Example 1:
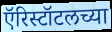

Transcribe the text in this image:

ऍरिस्टॉटलच्या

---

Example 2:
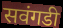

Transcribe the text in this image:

सवंगडी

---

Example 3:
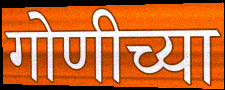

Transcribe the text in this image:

गोणीच्या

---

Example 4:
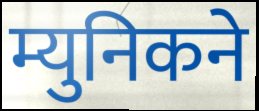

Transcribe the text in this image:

म्युनिकने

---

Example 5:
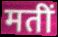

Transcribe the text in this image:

मतीं